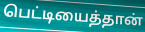
பெட்டியைத்தான்